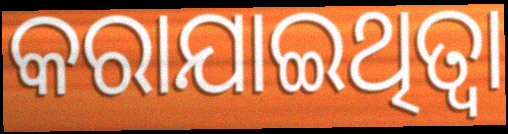
କରାଯାଇଥିତ୍ବା